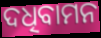
ଦଧିବାମନ